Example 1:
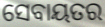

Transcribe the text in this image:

ସେବାୟତର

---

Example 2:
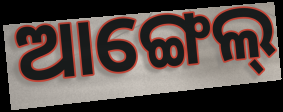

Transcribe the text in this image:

ଆଙ୍ଗେଲ୍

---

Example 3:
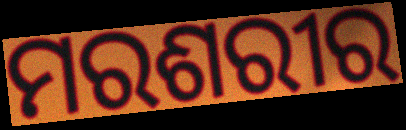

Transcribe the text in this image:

ମରଶରୀର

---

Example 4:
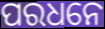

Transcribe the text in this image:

ପରଧନେ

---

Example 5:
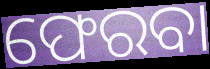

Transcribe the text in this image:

ଫେରବା